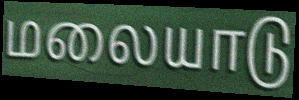
மலையாடு